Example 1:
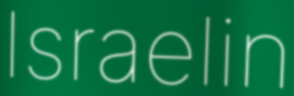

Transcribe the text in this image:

Israelin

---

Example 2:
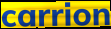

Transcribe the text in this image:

carrion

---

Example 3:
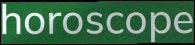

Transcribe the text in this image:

horoscope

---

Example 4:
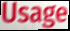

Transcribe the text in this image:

Usage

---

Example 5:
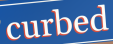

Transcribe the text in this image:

curbed